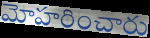
మోహరించారు